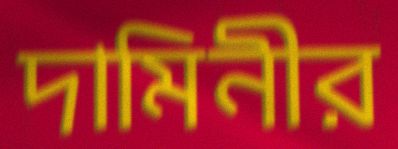
দামিনীর